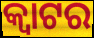
କ୍ୱାଟର